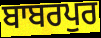
ਬਾਬਰਪੁਰ